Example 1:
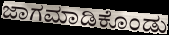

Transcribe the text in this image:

ಜಾಗಮಾಡಿಕೊಂಡು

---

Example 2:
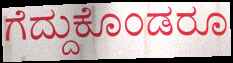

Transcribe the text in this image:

ಗೆದ್ದುಕೊಂಡರೂ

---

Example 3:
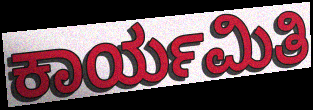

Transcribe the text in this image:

ಕಾರ್ಯಮಿತಿ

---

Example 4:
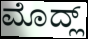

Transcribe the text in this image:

ಮೊದ್ಲ್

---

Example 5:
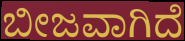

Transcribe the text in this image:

ಬೀಜವಾಗಿದೆ